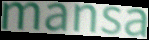
mansa